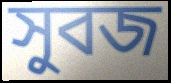
সুবজ